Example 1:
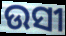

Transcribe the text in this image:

ଉସୀ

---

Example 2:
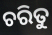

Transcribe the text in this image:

ଚରିତୁ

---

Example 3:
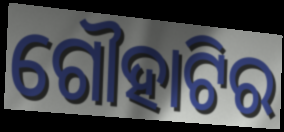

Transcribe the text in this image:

ଗୌହାଟିର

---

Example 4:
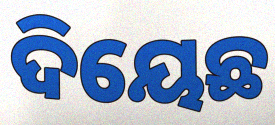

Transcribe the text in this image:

ଦିୟେଛ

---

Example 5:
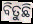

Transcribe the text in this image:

ବିତୁଛି